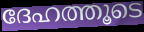
ദേഹത്തൂടെ